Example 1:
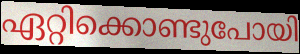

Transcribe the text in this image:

ഏറ്റിക്കൊണ്ടുപോയി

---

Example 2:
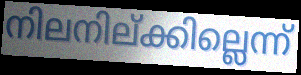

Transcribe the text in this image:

നിലനില്ക്കില്ലെന്ന്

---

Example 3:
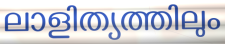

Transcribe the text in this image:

ലാളിത്യത്തിലും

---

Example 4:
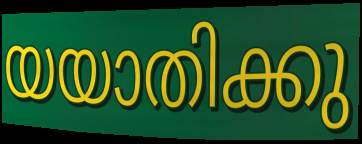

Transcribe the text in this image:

യയാതിക്കു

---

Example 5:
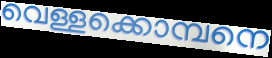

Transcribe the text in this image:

വെള്ളക്കൊമ്പനെ